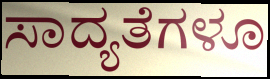
ಸಾದ್ಯತೆಗಳೂ